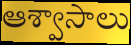
ఆశ్వాసాలు